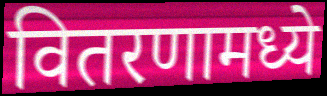
वितरणामध्ये